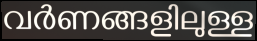
വർണങ്ങളിലുള്ള